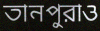
তানপুরাও